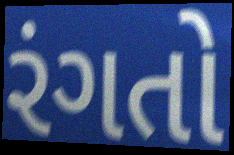
રંગતો